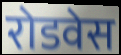
रोडवेस